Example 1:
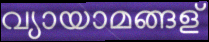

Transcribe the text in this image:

വ്യായാമങ്ങള്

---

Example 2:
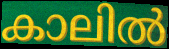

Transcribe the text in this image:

കാലിൽ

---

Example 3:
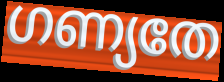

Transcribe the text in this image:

ഗണ്യതേ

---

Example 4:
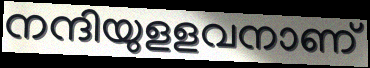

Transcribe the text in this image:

നന്ദിയുളളവനാണ്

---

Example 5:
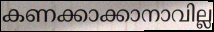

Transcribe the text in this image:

കണക്കാക്കാനാവില്ല